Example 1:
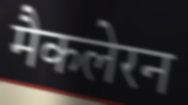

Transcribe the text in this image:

मैकलेरन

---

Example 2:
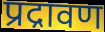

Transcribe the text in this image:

प्रद्रावण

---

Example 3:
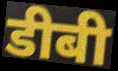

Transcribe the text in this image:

डीबी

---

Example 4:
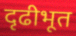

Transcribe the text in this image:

दृढीभूत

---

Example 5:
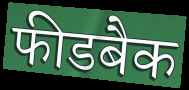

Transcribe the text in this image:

फीडबैक